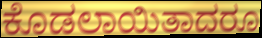
ಕೊಡಲಾಯಿತಾದರೂ